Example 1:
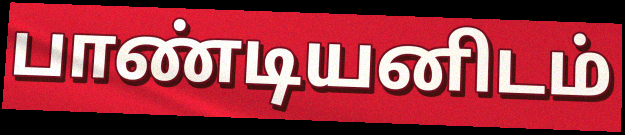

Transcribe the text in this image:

பாண்டியனிடம்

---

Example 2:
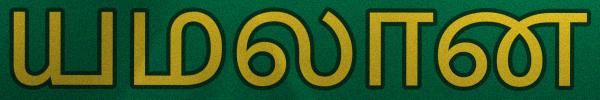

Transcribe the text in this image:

யமலான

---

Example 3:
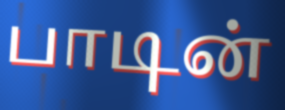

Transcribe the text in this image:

பாடின்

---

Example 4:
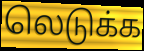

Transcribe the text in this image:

லெடுக்க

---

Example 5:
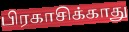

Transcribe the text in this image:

பிரகாசிக்காது